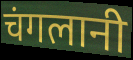
चंगलानी